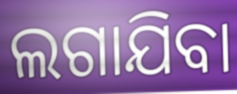
ଲଗାଯିବା